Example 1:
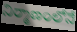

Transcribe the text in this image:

నిర్మాణంలోనే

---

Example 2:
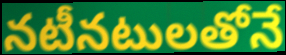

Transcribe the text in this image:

నటీనటులతోనే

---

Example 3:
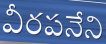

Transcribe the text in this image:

వీరపనేని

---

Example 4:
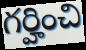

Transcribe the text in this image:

గర్హించి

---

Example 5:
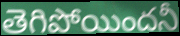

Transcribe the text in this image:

తెగిపోయిందనీ